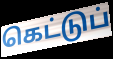
கெட்டுப்